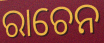
ରାଚେନ